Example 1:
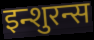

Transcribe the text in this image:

इन्शुरन्स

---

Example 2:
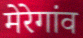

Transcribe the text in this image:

मेरेगांव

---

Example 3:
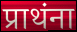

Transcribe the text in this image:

प्राथंना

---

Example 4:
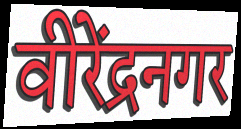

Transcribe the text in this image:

वीरेंद्रनगर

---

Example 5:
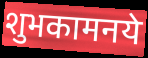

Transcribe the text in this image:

शुभकामनये